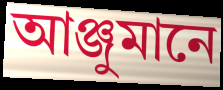
আঞ্জুমানে